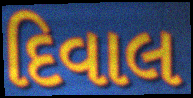
દિવાલ